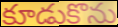
కూడుకొను